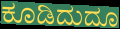
ಕೂಡಿದುದೂ